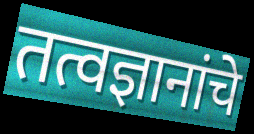
तत्वज्ञानांचे